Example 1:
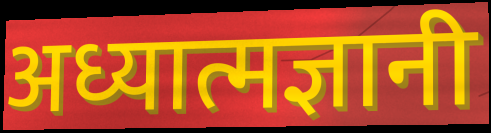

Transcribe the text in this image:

अध्यात्मज्ञानी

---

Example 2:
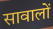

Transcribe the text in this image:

सावालों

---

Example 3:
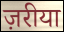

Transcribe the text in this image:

ज़रीया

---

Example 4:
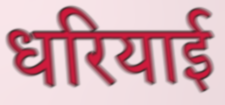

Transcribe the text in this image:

धरियाई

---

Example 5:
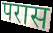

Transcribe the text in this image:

परास